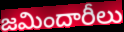
జమిందారీలు